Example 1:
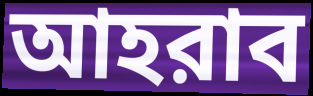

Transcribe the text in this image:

আহরাব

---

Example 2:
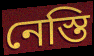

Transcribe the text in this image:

নেস্তি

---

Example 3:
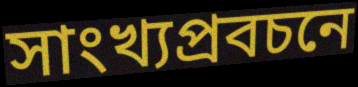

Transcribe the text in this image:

সাংখ্যপ্রবচনে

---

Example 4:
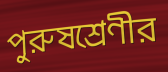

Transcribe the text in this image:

পুরুষশ্রেণীর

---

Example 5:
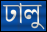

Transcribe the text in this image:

ঢালু